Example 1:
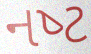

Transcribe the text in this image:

નષ્‍ટ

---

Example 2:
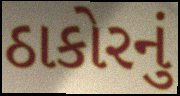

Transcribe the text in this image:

ઠાકોરનું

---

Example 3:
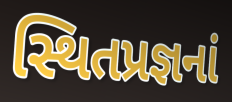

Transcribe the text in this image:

સ્થિતપ્રજ્ઞનાં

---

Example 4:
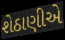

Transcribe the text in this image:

શેઠાણીએ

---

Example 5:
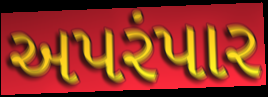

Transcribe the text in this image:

અપરંપાર